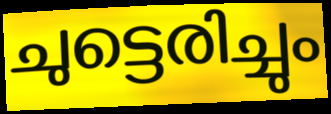
ചുട്ടെരിച്ചും